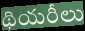
థియరీలు